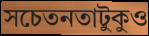
সচেতনতাটুকুও